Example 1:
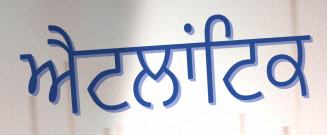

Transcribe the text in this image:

ਐਟਲਾਂਟਿਕ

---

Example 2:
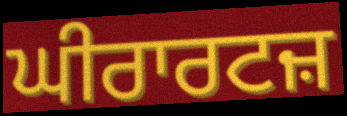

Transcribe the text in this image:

ਘੀਰਾਰਟਜ਼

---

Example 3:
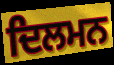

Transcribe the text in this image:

ਦਿਲਮਨ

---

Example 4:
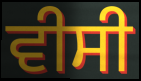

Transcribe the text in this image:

ਵੀਸੀ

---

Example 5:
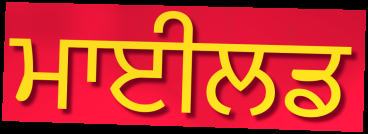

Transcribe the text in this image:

ਮਾਈਲਡ